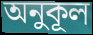
অনুকূল